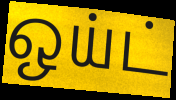
ஒய்ட்